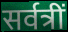
सर्वत्रीं